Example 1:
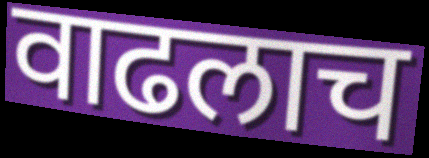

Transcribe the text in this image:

वाढलाच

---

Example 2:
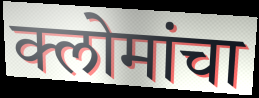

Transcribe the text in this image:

क्लोमांचा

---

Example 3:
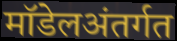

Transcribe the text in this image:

मॉडेलअंतर्गत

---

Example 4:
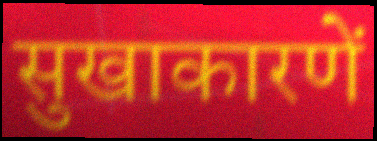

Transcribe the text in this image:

सुखाकारणें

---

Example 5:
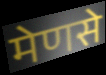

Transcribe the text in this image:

मेणसे